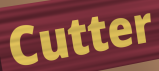
Cutter